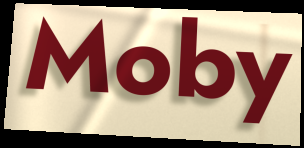
Moby